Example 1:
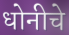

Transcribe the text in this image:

धोनीचे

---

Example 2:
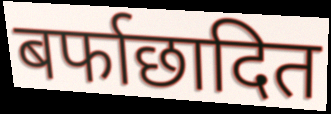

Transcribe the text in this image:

बर्फाछादित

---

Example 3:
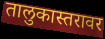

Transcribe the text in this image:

तालुकास्तरावर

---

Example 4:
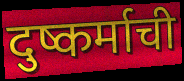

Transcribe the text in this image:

दुष्कर्माची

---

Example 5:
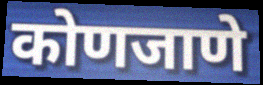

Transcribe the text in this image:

कोणजाणे